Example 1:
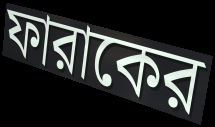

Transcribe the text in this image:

ফারাকের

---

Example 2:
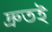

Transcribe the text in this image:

দ্রুতই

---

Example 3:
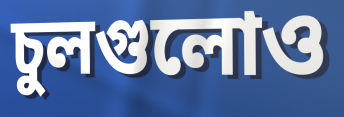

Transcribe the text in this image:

চুলগুলোও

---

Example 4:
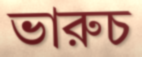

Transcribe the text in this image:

ভারুচ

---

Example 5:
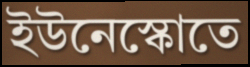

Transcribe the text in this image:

ইউনেস্কোতে